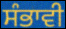
ਸੰਭਾਵੀ